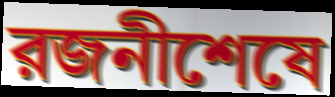
রজনীশেষে